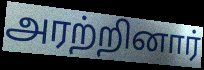
அரற்றினார்